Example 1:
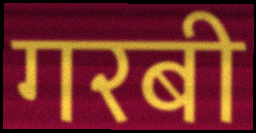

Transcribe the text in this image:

गरबी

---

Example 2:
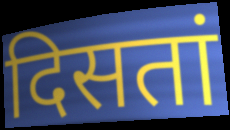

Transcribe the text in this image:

दिसतां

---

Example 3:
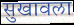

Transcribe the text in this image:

सुखावला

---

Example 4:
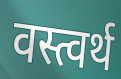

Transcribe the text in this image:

वस्त्वर्थ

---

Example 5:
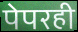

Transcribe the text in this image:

पेपरही